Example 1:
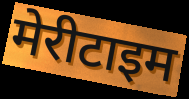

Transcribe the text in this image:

मेरीटाइम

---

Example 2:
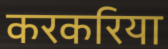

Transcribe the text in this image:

करकरिया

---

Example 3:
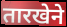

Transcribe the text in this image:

तारखेने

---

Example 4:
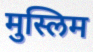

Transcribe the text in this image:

मुस्लिम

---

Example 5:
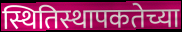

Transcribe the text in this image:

स्थितिस्थापकतेच्या